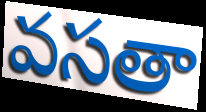
వసతా